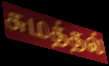
சுமத்தல்